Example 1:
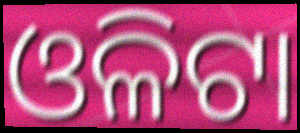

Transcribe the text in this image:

ଓଳିଟା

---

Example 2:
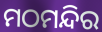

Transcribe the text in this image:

ମଠମନ୍ଦିର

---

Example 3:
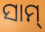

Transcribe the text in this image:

ସାମ୍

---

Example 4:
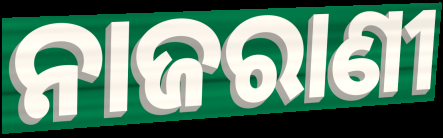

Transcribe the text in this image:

ନାଜରାଣୀ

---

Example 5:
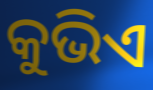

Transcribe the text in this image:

କୁଭିଏ